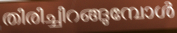
തിരിച്ചിറങ്ങുമ്പോൾ